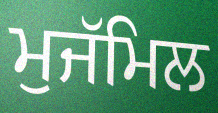
ਮੁਜੱਮਿਲ